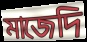
মাজেদি